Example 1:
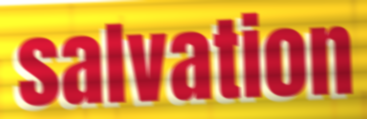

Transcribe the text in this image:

salvation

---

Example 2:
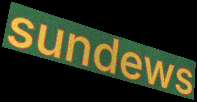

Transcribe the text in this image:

sundews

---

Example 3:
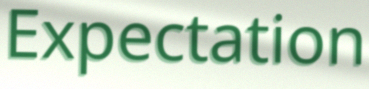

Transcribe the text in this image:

Expectation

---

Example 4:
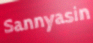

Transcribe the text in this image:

Sannyasin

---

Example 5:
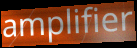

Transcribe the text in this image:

amplifier